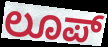
ಲೂಪ್